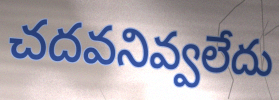
చదవనివ్వలేదు